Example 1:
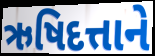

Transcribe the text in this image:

ઋષિદત્તાને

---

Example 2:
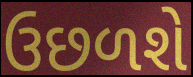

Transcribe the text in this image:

ઉછળશે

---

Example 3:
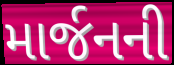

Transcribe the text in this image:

માર્જનની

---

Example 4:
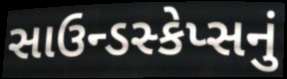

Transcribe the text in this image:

સાઉન્ડસ્કેપ્સનું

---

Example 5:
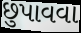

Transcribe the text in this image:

છુપાવવા